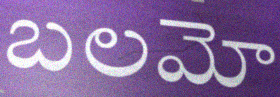
బలమో